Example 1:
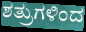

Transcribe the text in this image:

ಶತ್ರುಗಳಿಂದ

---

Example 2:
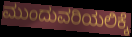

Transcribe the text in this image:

ಮುಂದುವರಿಯಲಿಕ್ಕೆ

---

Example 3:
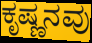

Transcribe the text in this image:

ಕೃಷ್ಣನವು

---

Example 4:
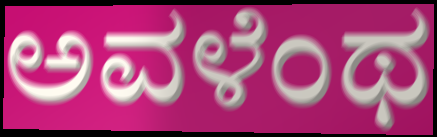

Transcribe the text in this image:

ಅವಳೆಂಥ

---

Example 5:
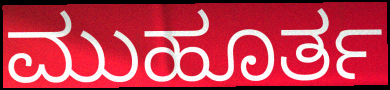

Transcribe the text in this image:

ಮುಹೂರ್ತ